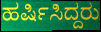
ಹರ್ಷಿಸಿದ್ದರು